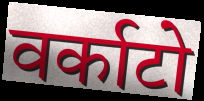
वर्काटो